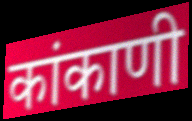
कांकाणी